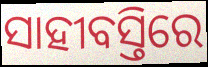
ସାହୀବସ୍ତିରେ